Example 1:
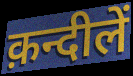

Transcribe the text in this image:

क़न्दीलें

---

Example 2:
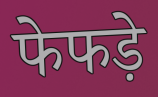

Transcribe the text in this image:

फेफड़े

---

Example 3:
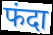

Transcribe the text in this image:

फंदा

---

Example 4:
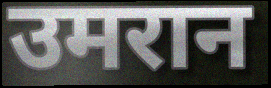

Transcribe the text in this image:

उमरान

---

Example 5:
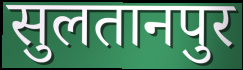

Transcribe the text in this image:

सुलतानपुर